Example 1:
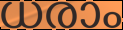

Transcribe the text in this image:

ധരാം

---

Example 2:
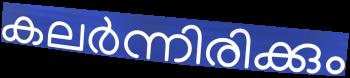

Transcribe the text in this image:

കലർന്നിരിക്കും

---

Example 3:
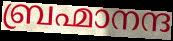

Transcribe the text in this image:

ബ്രഹ്മാനന്ദ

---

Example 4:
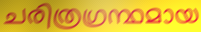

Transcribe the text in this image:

ചരിത്രഗ്രന്ഥമായ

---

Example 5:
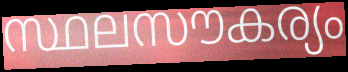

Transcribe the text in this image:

സ്ഥലസൗകര്യം